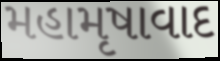
મહામૃષાવાદ